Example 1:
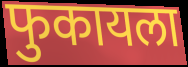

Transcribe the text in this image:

फुकायला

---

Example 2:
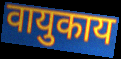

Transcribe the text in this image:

वायुकाय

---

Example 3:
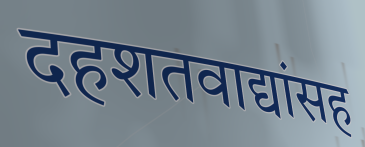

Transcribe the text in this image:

दहशतवाद्यांसह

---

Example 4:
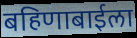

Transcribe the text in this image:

बहिणाबाईला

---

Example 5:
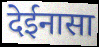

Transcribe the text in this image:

देईनासा